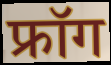
फ्रॉग